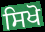
ਸਿਖੋ